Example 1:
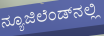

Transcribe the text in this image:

ನ್ಯೂಜಿಲೆಂಡ್‌ನಲ್ಲಿ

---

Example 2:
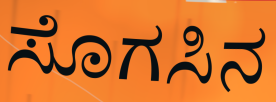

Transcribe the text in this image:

ಸೊಗಸಿನ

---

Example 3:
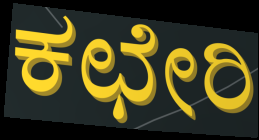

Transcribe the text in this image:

ಕಛೇರಿ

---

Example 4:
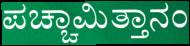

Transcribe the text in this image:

ಪಚ್ಚಾಮಿತ್ತಾನಂ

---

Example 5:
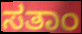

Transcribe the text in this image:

ಸತಾಂ